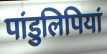
पांडुलिपियां